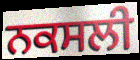
ਨਕਸਲੀ